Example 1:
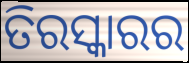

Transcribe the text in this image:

ତିରସ୍କାରର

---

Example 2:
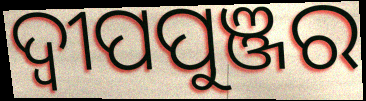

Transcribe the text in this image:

ଦ୍ଵୀପପୁଞ୍ଜର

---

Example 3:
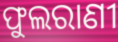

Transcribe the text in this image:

ଫୁଲରାଣୀ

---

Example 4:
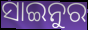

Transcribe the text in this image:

ସାଇନୁର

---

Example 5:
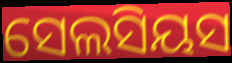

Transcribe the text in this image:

ସେଲସିୟସ